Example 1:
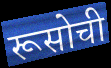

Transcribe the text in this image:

रूसोची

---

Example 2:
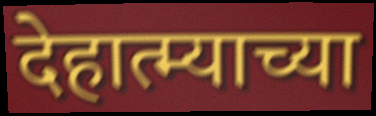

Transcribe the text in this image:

देहात्म्याच्या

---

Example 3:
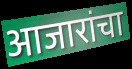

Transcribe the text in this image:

आजारांचा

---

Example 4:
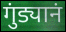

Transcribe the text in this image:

गुंड्यानं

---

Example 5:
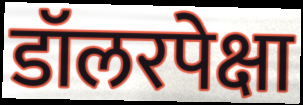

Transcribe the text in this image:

डॉलरपेक्षा